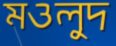
মওলুদ